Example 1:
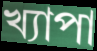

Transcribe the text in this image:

খ্যাপা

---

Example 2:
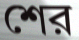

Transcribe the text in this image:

শের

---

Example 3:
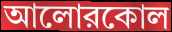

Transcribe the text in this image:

আলোরকোল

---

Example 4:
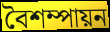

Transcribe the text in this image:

বৈশম্পায়ন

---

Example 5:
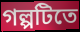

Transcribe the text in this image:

গল্পটিতে